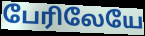
பேரிலேயே